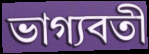
ভাগ্যবতী